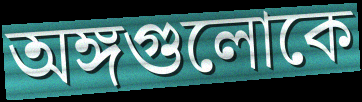
অঙ্গগুলোকে